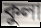
কুলা